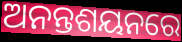
ଅନନ୍ତଶୟନରେ